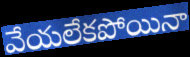
వేయలేకపోయినా